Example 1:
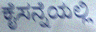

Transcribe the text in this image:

ಕೈಸನ್ನೆಯಲ್ಲಿ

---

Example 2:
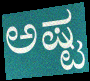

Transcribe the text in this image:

ಅಷ್ಟ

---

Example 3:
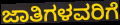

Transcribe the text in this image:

ಜಾತಿಗಳವರಿಗೆ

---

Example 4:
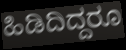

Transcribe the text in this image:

ಹಿಡಿದಿದ್ದರೂ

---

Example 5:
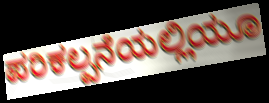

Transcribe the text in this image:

ಪರಿಕಲ್ಪನೆಯಲ್ಲಿಯೂ